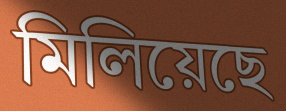
মিলিয়েছে